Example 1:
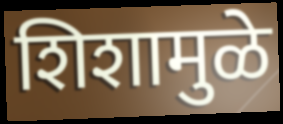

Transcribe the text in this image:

शिशामुळे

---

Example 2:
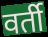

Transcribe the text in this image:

वर्ती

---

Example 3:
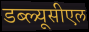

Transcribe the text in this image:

डब्ल्यूसीएल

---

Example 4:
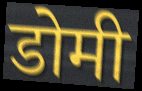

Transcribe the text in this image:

डोमी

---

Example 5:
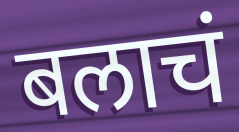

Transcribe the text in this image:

बलाचं